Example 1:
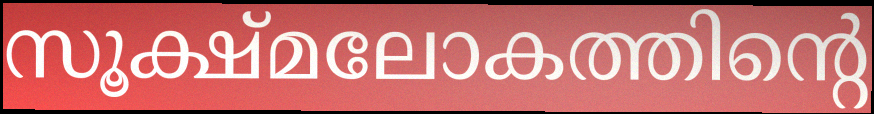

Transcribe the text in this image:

സൂക്ഷ്മലോകത്തിന്റെ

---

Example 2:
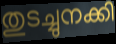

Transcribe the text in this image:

തുടച്ചുനക്കി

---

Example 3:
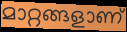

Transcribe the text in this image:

മാറ്റങ്ങളാണ്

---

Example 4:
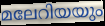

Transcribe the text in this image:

മലേറിയയും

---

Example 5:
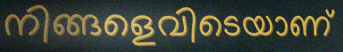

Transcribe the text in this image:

നിങ്ങളെവിടെയാണ്